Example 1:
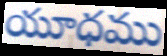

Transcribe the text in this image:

యూధము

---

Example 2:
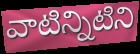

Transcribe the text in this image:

వాటిన్నిటిని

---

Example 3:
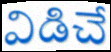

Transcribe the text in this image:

విడిచే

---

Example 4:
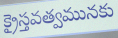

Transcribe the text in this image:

క్రైస్తవత్వమునకు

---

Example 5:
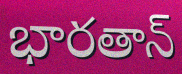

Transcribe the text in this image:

భారతాన్